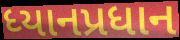
ધ્યાનપ્રધાન